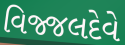
વિજ્જલદેવે